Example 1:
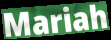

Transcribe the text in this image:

Mariah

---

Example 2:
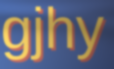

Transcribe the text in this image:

gjhy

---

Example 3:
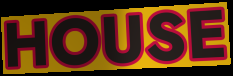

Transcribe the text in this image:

HOUSE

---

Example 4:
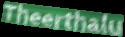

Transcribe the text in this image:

Theerthalu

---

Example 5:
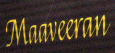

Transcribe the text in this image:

Maaveeran